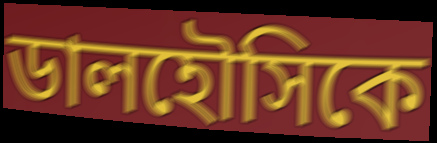
ডালহৌসিকে